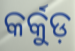
କର୍କୁଡ଼